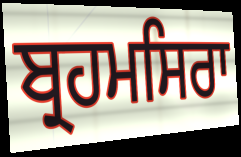
ਬ੍ਰਹਮਸਿਰਾ